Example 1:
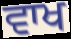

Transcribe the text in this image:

ਵਾਖ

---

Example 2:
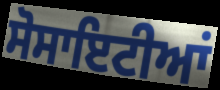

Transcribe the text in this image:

ਸੋਸਾਇਟੀਆਂ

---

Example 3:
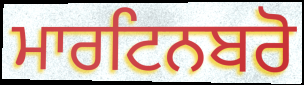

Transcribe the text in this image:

ਮਾਰਟਿਨਬਰੋ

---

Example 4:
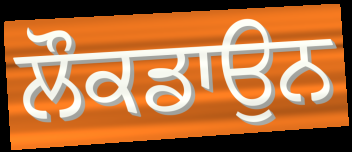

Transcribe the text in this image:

ਲੌਕਡਾਉਨ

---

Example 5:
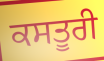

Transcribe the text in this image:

ਕਸਤੂਰੀ